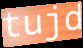
tujd